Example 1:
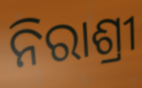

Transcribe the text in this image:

ନିରାଶ୍ରୀ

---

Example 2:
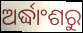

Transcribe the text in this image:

ଅର୍ଦ୍ଧାଂଶରୁ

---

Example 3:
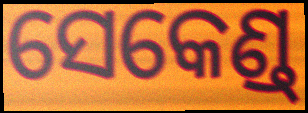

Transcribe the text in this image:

ସେକେଣ୍ଡ୍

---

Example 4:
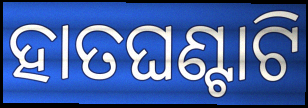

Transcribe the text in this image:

ହାତଘଣ୍ଟାଟି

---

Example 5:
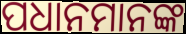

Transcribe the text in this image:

ପଧାନମାନଙ୍କ